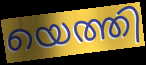
യെത്തി